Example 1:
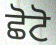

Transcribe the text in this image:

ਛੋਟੋ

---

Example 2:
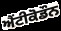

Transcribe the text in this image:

ਐਂਟੀਕੋਡੌਨ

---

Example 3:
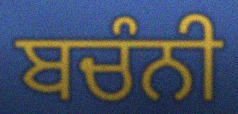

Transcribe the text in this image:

ਬਚੰਨੀ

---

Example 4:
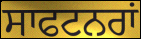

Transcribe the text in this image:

ਸਾਫਟਨਰਾਂ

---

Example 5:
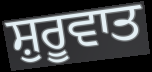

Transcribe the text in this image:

ਸ਼ੁਰੂਵਾਤ